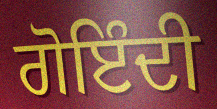
ਗੋਇੰਦੀ